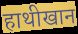
हाथीखान